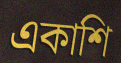
একাশি